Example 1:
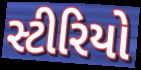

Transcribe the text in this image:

સ્ટીરિયો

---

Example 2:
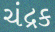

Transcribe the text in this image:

ચંદ્રક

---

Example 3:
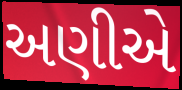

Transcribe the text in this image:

અણીએ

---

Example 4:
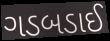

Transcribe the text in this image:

ગડબડાઈ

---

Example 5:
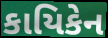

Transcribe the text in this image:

કાયિકેન